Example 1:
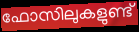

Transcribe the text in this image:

ഫോസിലുകളുണ്ട്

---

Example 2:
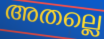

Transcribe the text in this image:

അതല്ലെ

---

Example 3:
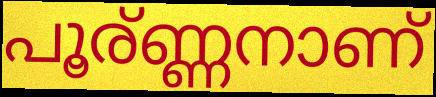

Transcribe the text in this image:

പൂര്ണ്ണനാണ്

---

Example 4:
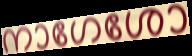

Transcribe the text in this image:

നാഗേശോ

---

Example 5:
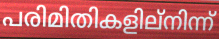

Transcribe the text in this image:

പരിമിതികളില്നിന്ന്